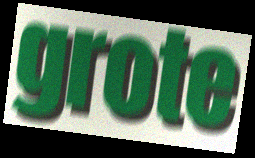
grote